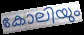
കോലിയും